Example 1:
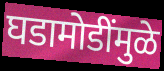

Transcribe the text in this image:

घडामोडींमुळे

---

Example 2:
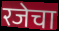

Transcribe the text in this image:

रजेचा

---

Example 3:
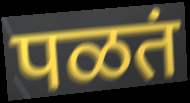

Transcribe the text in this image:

पळतं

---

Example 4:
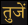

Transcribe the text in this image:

तुजें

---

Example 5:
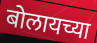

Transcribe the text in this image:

बोलायच्या